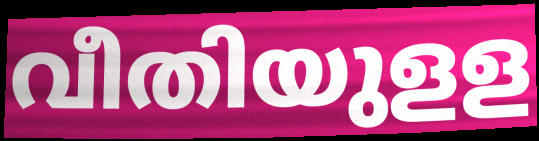
വീതിയുളള